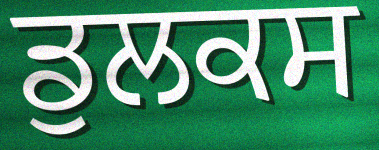
ਡੁਲਕਸ